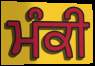
ਮੰਕੀ